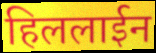
हिललाईन